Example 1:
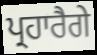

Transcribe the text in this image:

ਪ੍ਰਹਾਰੈਗੇ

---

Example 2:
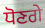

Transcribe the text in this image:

ਧੋਣਗੇ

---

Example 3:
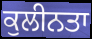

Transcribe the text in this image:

ਕੁਲੀਨਤਾ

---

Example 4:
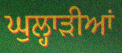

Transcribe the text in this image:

ਘੁਲ੍ਹਾੜੀਆਂ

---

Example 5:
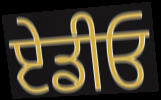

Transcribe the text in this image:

ਏਡੀਓ